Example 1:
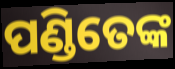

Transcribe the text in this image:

ପଣ୍ଡିତେଙ୍କ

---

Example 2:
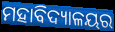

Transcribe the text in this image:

ମହାବିଦ୍ୟାଳୟର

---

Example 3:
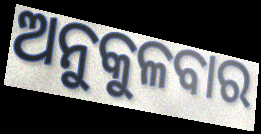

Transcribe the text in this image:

ଅନୁକୁଳବାର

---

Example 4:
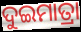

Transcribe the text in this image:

ଦୁଇମାତ୍ରା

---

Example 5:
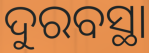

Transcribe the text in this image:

ଦୁରବସ୍ଥା